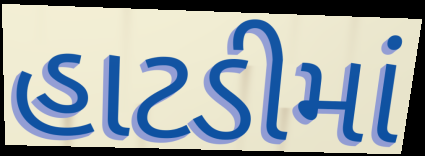
હાટડીમાં